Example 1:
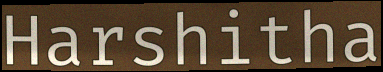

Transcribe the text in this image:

Harshitha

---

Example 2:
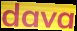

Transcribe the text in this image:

dava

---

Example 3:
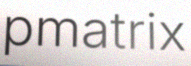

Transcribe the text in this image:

pmatrix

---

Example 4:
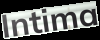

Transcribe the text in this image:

Intima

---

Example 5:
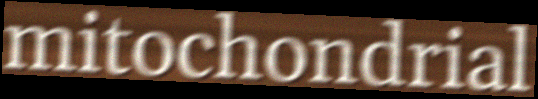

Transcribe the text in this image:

mitochondrial